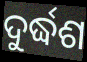
ଦୁର୍ଦ୍ଧଶ